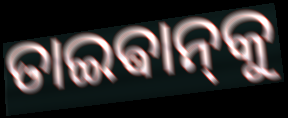
ତାଇଵାନ୍‌କୁ